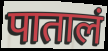
पातालं